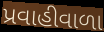
પ્રવાહીવાળા